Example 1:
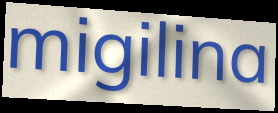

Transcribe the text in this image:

migilina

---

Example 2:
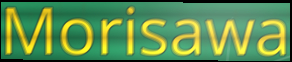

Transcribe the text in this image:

Morisawa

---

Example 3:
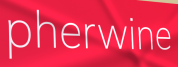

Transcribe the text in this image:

pherwine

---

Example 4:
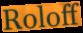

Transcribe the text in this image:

Roloff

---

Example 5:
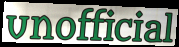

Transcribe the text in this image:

unofficial